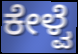
ಕೇಳ್ವೆ